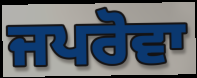
ਜਪਰੋਵਾ